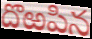
దొఱపిన